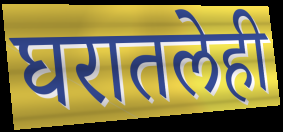
घरातलेही